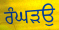
ਰੰਘੜਉ